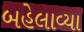
બહેલાવ્યા